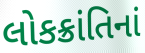
લોકક્રાંતિનાં